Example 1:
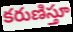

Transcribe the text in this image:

కరుణిస్తూ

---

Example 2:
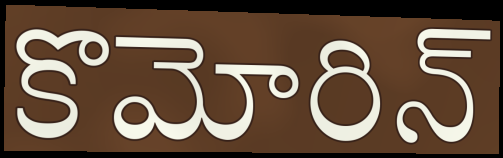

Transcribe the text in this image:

కొమోరిన్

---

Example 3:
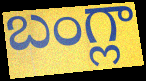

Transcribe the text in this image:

బంగ్లా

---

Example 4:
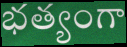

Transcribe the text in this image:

భత్యంగా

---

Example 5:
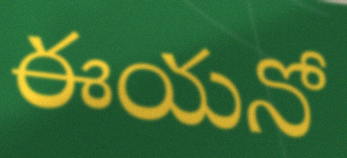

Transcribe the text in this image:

ఈయనో